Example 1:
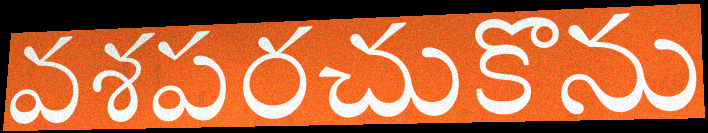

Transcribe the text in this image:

వశపరచుకొను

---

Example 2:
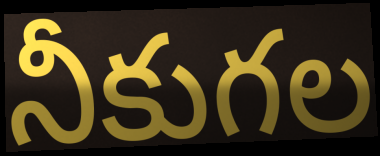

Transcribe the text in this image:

నీకుగల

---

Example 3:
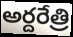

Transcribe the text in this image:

అర్దరేత్రి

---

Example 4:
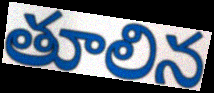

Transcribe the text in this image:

తూలిన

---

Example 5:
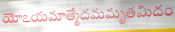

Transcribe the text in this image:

యోఽయమాత్మేదమమృతమిదం